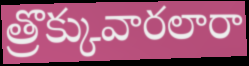
త్రొక్కువారలారా